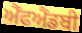
ਐੱਫਐਂਡਬੀ